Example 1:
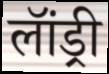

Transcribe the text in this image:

लॉंड्री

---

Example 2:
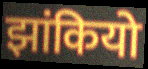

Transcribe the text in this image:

झांकियो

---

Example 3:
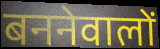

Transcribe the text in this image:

बननेवालों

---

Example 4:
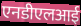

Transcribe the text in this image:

एनडीएलआई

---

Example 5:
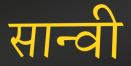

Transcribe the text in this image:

सान्वी